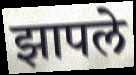
झापले